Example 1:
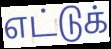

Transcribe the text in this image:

எட்டுக்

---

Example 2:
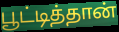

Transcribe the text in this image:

பூட்டித்தான்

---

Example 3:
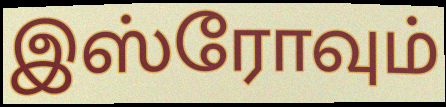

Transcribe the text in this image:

இஸ்ரோவும்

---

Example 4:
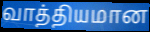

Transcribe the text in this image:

வாத்தியமான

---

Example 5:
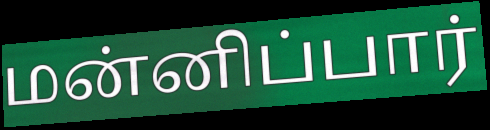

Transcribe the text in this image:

மன்னிப்பார்